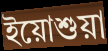
ইয়োশুয়া